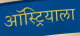
ऑस्ट्रियाला